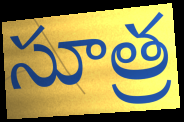
సూత్ర